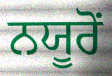
ਨਯੂਰੋਂ